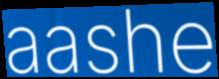
aashe